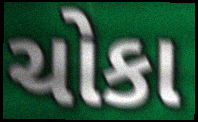
ચોકા